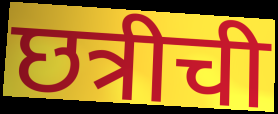
छत्रीची